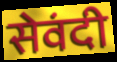
सेवंदी